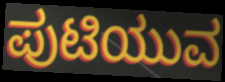
ಪುಟಿಯುವ